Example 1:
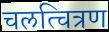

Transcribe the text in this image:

चलत्चित्रण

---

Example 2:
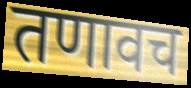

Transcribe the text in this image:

तणावच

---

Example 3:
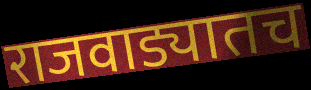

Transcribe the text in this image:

राजवाड्यातच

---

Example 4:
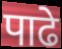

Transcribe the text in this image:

पाढे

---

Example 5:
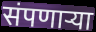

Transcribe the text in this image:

संपणाऱ्या